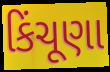
કિંચૂણા